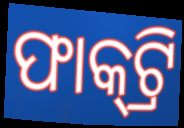
ଫାକ୍‍ଟ୍ରି